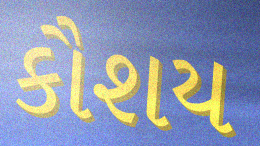
કૌશય